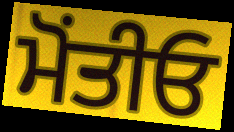
ਮੋਂਤੀਓ